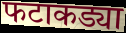
फटाकड्या